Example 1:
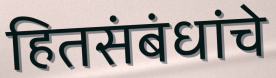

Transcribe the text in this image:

हितसंबंधांचे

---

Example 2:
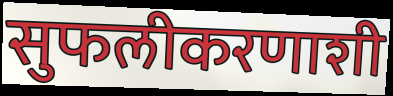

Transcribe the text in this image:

सुफलीकरणाशी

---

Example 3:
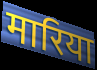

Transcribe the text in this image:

मारिया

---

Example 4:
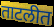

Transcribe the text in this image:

ताटलीत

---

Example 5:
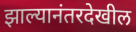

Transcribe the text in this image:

झाल्यानंतरदेखील